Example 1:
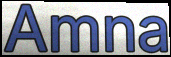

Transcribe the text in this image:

Amna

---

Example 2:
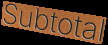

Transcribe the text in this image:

Subtotal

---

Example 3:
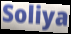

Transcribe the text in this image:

Soliya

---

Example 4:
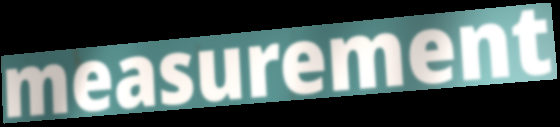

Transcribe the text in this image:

measurement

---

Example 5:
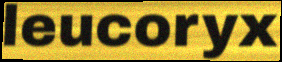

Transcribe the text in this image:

leucoryx